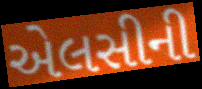
એલસીની